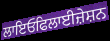
ਲਾਇਓਫਿਲਾਈਜ਼ੇਸ਼ਨ